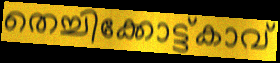
തെച്ചിക്കോട്ട്കാവ്